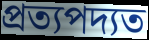
প্রত্যপদ্যত